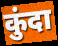
कुंदा